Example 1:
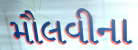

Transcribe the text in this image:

મૌલવીના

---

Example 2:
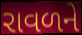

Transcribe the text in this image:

રાવળને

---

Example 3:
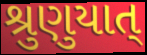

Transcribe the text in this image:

શ્રુણુયાત્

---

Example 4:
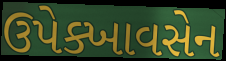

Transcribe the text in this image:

ઉપેક્ખાવસેન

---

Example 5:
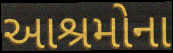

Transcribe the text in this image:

આશ્રમોના